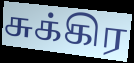
சுக்கிர